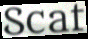
Scat